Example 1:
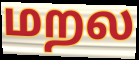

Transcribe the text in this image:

மறல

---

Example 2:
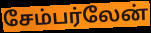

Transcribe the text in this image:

சேம்பர்லேன்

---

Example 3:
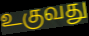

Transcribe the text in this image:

உகுவது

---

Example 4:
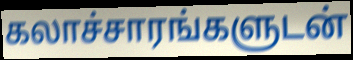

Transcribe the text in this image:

கலாச்சாரங்களுடன்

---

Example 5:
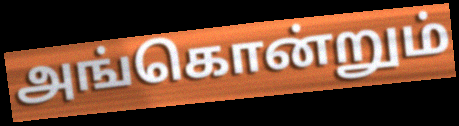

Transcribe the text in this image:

அங்கொன்றும்